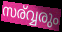
സര്വ്വരും